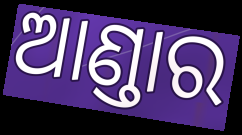
ଆଣ୍ଡାର